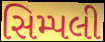
સિમ્પલી